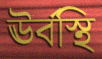
ঊর্বস্থি